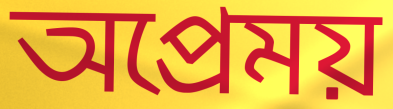
অপ্রেময়